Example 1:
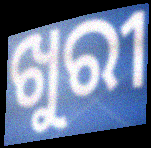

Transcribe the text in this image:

ଖୁରୀ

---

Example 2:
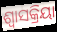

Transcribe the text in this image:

ଶ୍ବାସକ୍ରିୟା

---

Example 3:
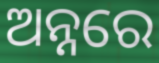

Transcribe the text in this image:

ଅନ୍ନରେ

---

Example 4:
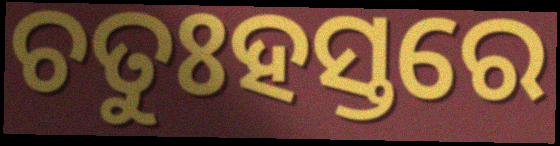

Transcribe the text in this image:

ଚତୁଃହସ୍ତରେ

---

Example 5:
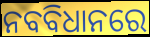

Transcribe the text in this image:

ନବବିଧାନରେ